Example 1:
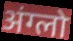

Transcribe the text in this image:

अंग्लो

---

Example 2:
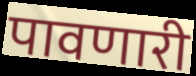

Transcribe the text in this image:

पावणारी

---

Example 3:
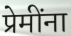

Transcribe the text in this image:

प्रेमींना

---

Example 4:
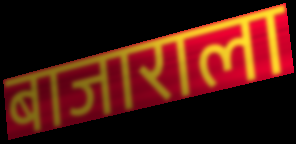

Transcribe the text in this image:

बाजाराला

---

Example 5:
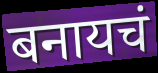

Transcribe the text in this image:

बनायचं